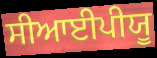
ਸੀਆਈਪੀਯੂ